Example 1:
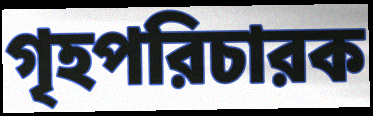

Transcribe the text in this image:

গৃহপরিচারক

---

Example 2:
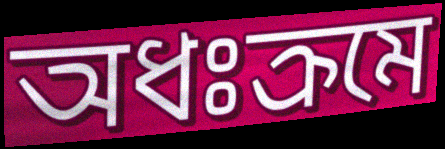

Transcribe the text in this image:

অধঃক্রমে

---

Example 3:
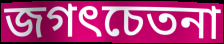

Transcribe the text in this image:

জগৎচেতনা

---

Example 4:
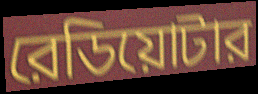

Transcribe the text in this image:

রেডিয়োটার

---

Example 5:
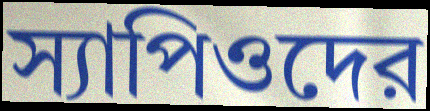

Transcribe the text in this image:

স্যাপিওদের